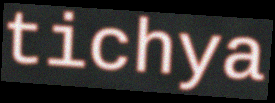
tichya